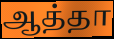
ஆத்தா